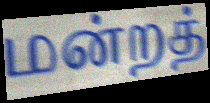
மன்றத்